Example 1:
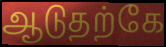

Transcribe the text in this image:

ஆடுதற்கே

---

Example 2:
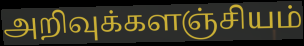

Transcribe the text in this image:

அறிவுக்களஞ்சியம்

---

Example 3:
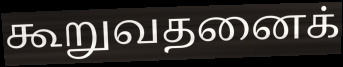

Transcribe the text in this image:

கூறுவதனைக்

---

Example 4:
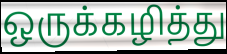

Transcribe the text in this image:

ஒருக்கழித்து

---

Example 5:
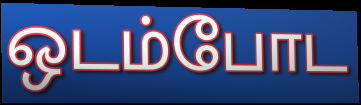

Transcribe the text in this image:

ஒடம்போட